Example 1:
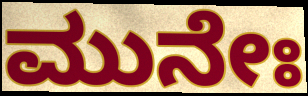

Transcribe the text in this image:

ಮುನೇಃ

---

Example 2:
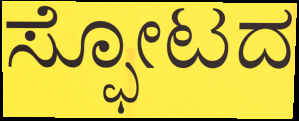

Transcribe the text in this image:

ಸ್ಫೋಟದ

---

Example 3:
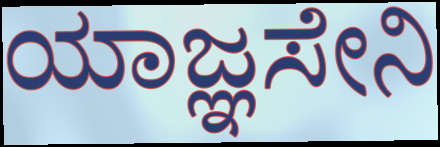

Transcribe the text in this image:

ಯಾಜ್ಞಸೇನಿ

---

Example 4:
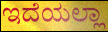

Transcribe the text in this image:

ಇದೆಯಲ್ಲಾ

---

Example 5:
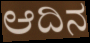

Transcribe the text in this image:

ಆದಿನ